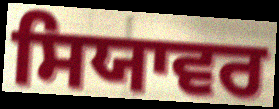
ਸਿਯਾਵਰ